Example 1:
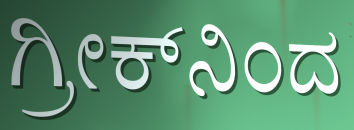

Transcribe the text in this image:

ಗ್ರೀಕ್‌ನಿಂದ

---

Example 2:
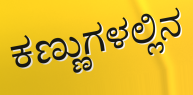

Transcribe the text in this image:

ಕಣ್ಣುಗಳಲ್ಲಿನ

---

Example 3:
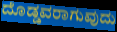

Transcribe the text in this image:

ದೊಡ್ಡವರಾಗುವುದು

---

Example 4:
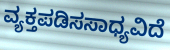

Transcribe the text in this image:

ವ್ಯಕ್ತಪಡಿಸಸಾಧ್ಯವಿದೆ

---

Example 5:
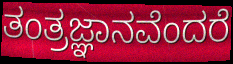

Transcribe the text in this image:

ತಂತ್ರಜ್ಞಾನವೆಂದರೆ